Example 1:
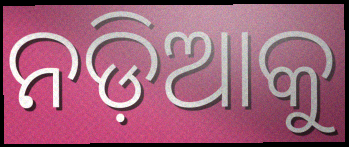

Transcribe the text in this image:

ନଡ଼ିଆକୁ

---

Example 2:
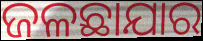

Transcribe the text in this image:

ଜଳଛାଯାର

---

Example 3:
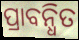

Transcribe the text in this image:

ପ୍ରାବନ୍ଧିତ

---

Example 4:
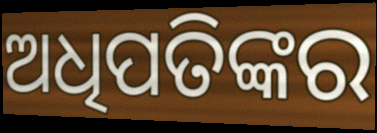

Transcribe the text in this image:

ଅଧିପତିଙ୍କର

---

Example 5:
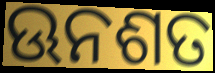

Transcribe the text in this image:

ଊନଶତ